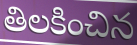
తిలకించిన